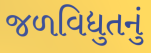
જળવિદ્યુતનું